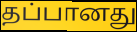
தப்பானது